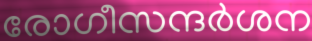
രോഗീസന്ദർശന